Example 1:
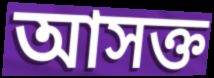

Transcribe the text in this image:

আসক্ত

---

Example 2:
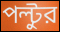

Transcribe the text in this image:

পল্টুর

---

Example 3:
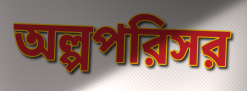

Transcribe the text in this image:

অল্পপরিসর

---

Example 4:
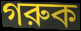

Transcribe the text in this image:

গরুক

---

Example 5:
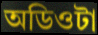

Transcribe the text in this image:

অডিওটা